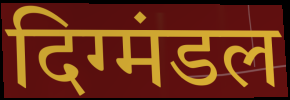
दिग्मंडल